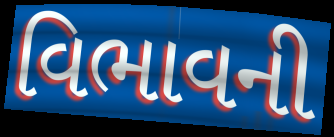
વિભાવની